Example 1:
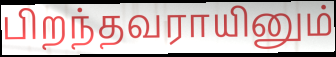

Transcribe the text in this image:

பிறந்தவராயினும்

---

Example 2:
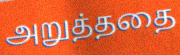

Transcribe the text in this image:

அறுத்ததை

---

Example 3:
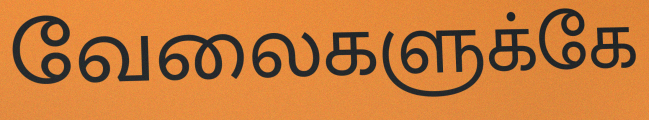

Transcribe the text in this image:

வேலைகளுக்கே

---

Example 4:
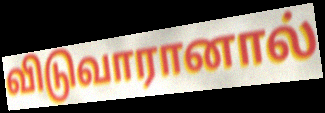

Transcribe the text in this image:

விடுவாரானால்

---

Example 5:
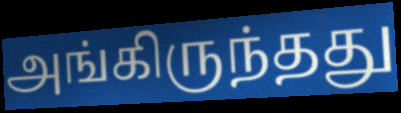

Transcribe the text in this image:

அங்கிருந்தது